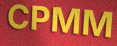
CPMM